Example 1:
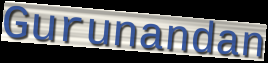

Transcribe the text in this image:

Gurunandan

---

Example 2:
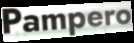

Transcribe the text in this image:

Pampero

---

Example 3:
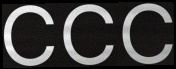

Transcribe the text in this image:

CCC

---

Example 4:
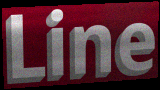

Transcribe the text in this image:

Line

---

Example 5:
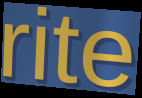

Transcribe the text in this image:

rite